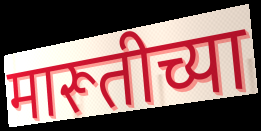
मारूतीच्या